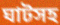
ঘাটসহ